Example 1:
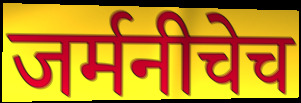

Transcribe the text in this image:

जर्मनीचेच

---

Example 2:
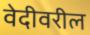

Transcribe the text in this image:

वेदीवरील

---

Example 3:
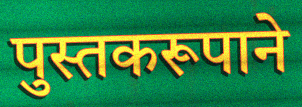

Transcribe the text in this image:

पुस्तकरूपाने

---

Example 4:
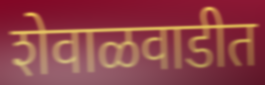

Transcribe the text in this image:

शेवाळवाडीत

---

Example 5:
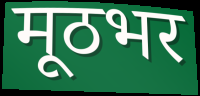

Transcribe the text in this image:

मूठभर